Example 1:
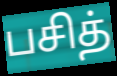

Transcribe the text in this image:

பசித்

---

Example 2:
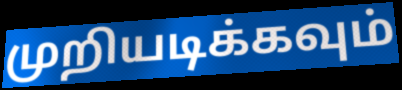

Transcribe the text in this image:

முறியடிக்கவும்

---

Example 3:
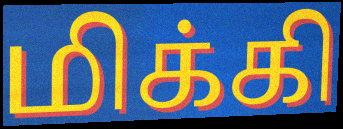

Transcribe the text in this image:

மிக்கி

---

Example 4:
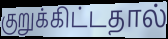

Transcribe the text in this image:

குறுக்கிட்டதால்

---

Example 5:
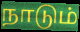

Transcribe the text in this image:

நாடும்